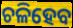
ଚଳିହେବ